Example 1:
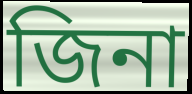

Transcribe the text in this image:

জিনা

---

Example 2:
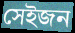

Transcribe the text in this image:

সেইজন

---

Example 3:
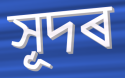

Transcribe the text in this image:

সূদৰ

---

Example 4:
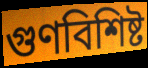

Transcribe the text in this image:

গুণবিশিষ্ট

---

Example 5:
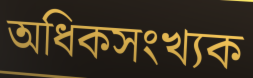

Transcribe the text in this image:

অধিকসংখ্যক